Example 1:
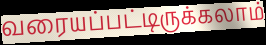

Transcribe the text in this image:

வரையப்பட்டிருக்கலாம்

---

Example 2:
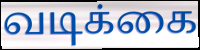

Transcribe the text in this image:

வடிக்கை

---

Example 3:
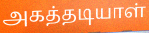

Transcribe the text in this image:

அகத்தடியாள்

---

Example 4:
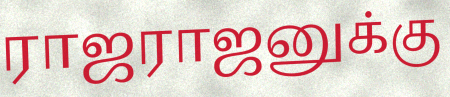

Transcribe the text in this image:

ராஜராஜனுக்கு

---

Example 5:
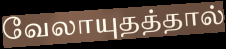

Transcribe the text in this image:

வேலாயுதத்தால்